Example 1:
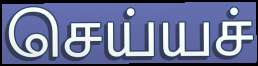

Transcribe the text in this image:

செய்யச்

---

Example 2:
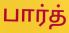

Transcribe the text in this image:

பார்த்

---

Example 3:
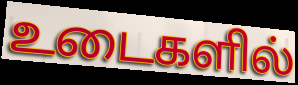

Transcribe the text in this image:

உடைகளில்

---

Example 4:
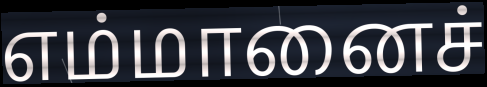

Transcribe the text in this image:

எம்மானைச்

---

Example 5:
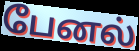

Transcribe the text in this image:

பேனல்